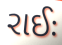
રાઈઃ